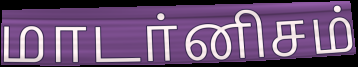
மாடர்னிசம்